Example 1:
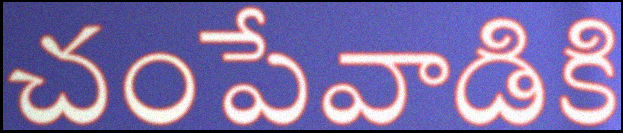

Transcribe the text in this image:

చంపేవాడికి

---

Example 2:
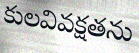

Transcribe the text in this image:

కులవివక్షతను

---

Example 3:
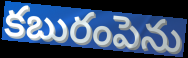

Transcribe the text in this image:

కబురంపెను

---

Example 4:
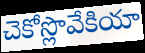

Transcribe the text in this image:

చెకోస్లొవేకియా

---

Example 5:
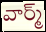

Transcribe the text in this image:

వార్మ్